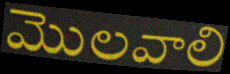
మొలవాలి